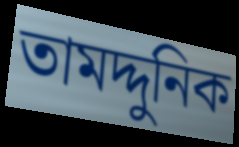
তামদ্দুনিক